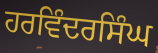
ਹਰਵਿੰਦਰਸਿੰਘ